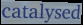
catalysed